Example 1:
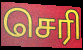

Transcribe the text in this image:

செரி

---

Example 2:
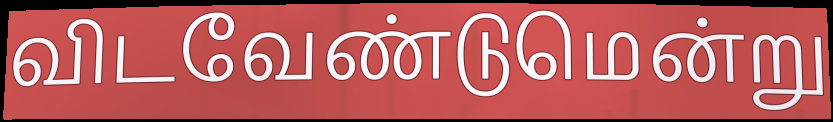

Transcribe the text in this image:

விடவேண்டுமென்று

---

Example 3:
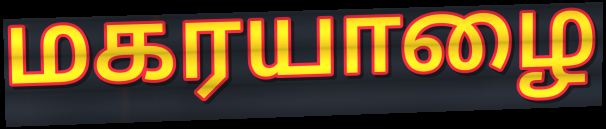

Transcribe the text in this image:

மகரயாழை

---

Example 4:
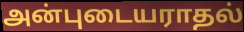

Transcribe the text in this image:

அன்புடையராதல்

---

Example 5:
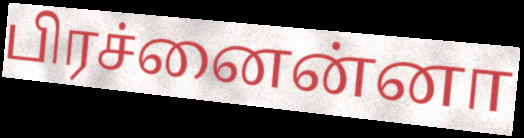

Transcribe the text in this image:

பிரச்னைன்னா